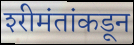
श्रीमंतांकडून